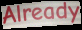
Already